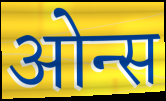
ओन्स